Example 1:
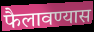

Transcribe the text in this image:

फैलावण्यास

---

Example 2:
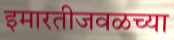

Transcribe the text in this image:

इमारतीजवळच्या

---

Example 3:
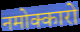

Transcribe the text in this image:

नमोक्कारो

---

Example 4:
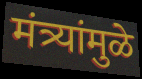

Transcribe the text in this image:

मंत्र्यांमुळे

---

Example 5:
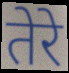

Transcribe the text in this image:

तेरे